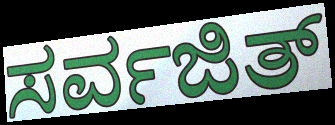
ಸರ್ವಜಿತ್